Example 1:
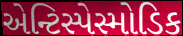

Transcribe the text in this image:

એન્ટિસ્પેસ્મોડિક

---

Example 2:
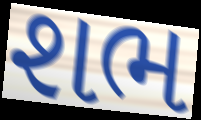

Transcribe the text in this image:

શભ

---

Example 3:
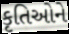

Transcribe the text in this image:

કૃતિઓને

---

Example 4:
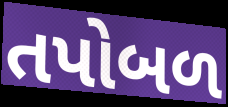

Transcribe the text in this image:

તપોબળ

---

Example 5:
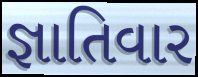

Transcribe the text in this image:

જ્ઞાતિવાર